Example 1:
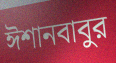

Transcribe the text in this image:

ঈশানবাবুর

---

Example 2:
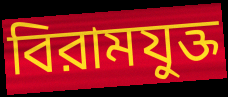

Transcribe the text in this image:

বিরামযুক্ত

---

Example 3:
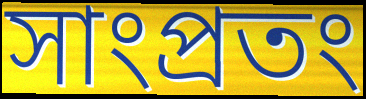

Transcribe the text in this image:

সাংপ্রতং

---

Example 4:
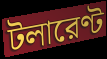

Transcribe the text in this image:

টলারেণ্ট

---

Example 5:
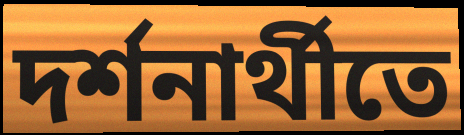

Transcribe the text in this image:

দর্শনার্থীতে